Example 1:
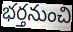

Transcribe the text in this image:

భర్తనుంచి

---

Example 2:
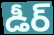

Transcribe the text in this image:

డీర్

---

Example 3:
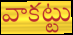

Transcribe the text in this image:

వాకట్టు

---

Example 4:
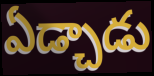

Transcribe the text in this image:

ఏడ్చాడు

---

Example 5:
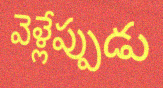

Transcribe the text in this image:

వెళ్లేప్పుడు